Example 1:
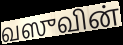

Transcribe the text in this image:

வஸுவின்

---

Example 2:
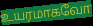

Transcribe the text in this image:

உயரமாகவோ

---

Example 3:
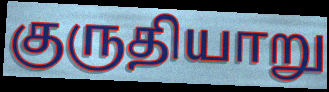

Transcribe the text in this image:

குருதியாறு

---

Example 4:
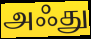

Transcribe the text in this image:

அஃது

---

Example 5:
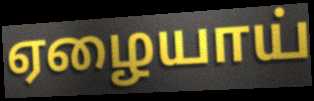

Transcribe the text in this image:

ஏழையாய்